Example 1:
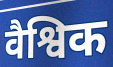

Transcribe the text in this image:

वैश्विक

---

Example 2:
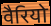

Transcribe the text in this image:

वैरियो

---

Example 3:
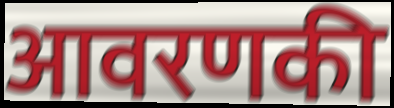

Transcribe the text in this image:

आवरणकी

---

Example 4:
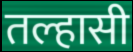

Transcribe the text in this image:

तल्हासी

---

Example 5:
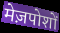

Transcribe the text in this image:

मेज़पोशों